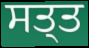
ਸਤ੍ਤ